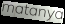
matanya